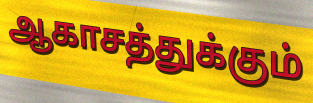
ஆகாசத்துக்கும்